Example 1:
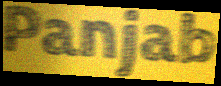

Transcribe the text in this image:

Panjab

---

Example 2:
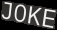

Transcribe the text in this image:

JOKE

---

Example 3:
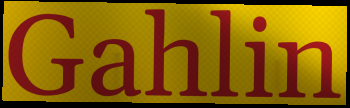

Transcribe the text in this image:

Gahlin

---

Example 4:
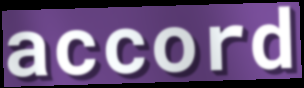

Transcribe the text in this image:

accord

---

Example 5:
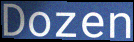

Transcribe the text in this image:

Dozen